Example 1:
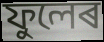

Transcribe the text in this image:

ফুলেৰ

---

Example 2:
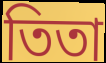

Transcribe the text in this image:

তিতা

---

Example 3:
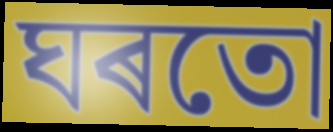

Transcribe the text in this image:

ঘৰতো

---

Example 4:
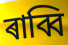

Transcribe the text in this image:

ৰাব্বি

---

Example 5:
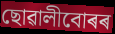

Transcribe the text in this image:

ছোৱালীবোৰৰ